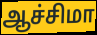
ஆச்சிமா